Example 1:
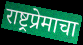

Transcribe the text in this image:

राष्ट्रप्रेमाचा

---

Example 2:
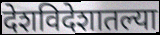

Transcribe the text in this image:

देशविदेशातल्या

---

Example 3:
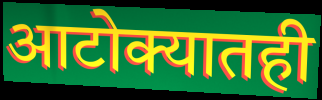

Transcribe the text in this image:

आटोक्यातही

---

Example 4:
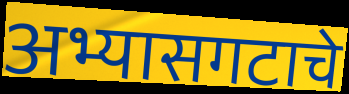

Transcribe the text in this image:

अभ्यासगटाचे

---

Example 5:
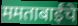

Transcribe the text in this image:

ममताबाईंचे